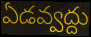
ఏడవ్వద్దు